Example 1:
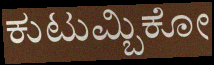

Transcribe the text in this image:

ಕುಟುಮ್ಬಿಕೋ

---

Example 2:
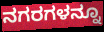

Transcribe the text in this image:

ನಗರಗಳನ್ನೂ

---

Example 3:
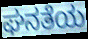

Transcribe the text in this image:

ಘನತೆಯ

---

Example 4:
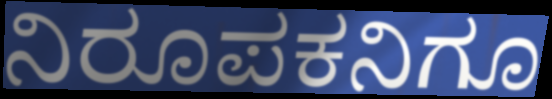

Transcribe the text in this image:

ನಿರೂಪಕನಿಗೂ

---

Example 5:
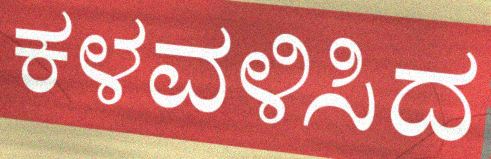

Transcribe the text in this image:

ಕಳವಳಿಸಿದ